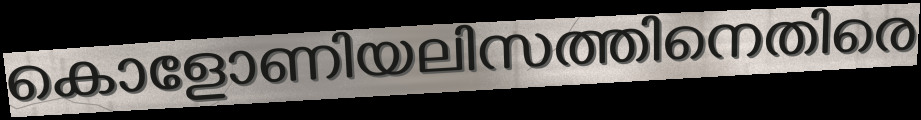
കൊളോണിയലിസത്തിനെതിരെ